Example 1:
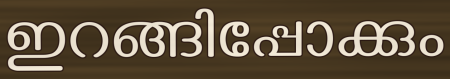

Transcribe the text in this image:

ഇറങ്ങിപ്പോക്കും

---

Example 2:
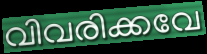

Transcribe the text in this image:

വിവരിക്കവേ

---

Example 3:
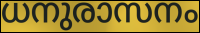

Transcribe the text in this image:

ധനുരാസനം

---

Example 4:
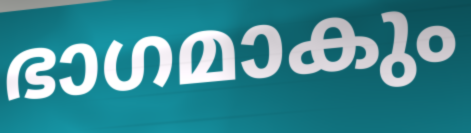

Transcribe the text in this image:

ഭാഗമാകും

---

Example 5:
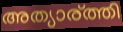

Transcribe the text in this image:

അത്യാര്ത്തി